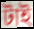
টাই